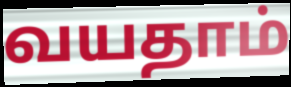
வயதாம்